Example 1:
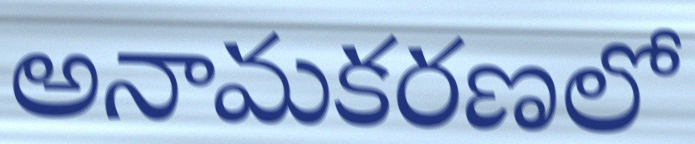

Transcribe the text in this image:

అనామకరణలో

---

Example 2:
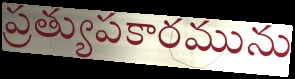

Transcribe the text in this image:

ప్రత్యుపకారమును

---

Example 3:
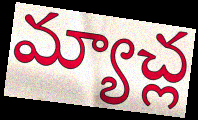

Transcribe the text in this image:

మ్యాచ్ల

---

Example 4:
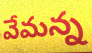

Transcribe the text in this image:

వేమన్న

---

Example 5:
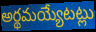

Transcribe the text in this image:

అర్థమయ్యేటట్లు